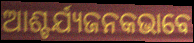
ଆଶ୍ଚର୍ଯ୍ୟଜନକଭାବେ